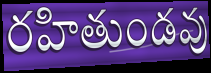
రహితుండవు